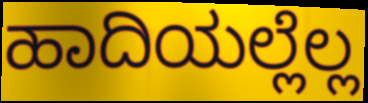
ಹಾದಿಯಲ್ಲೆಲ್ಲ